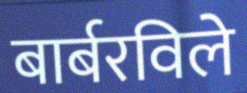
बार्बरविले